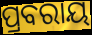
ପ୍ରବରାୟ